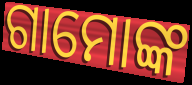
ଗାମୋଙ୍କ